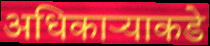
अधिकार्‍याकडे